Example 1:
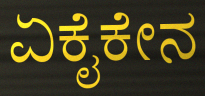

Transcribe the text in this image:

ಏಕೈಕೇನ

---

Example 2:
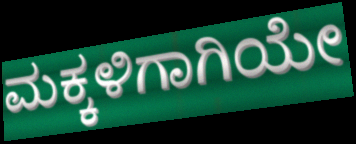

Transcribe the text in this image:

ಮಕ್ಕಳಿಗಾಗಿಯೇ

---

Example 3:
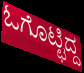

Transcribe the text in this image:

ಓಗೊಟ್ಟಿದ್ದ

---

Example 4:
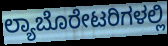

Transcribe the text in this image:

ಲ್ಯಾಬೊರೇಟರಿಗಳಲ್ಲಿ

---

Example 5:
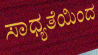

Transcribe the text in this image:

ಸಾಧ್ಯತೆಯಿಂದ